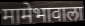
मामेभावाला